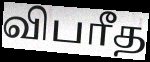
விபரீத